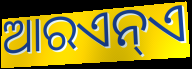
ଆରଏନ୍ଏ